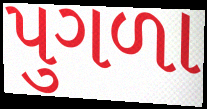
પુગળા